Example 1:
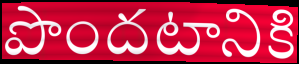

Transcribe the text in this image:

పొందటానికి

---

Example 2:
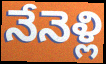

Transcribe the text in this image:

నేనెళ్లి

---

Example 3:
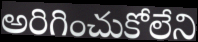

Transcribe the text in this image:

అరిగించుకోలేని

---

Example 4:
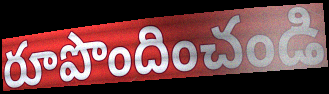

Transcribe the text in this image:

రూపొందించండి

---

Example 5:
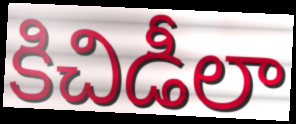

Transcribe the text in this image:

కిచిడీలా